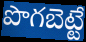
పొగబెట్టే